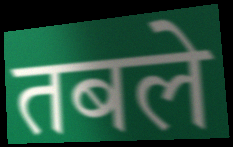
तबले